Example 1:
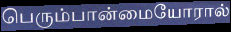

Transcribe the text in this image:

பெரும்பான்மையோரால்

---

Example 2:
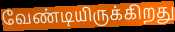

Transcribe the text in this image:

வேண்டியிருக்கிறது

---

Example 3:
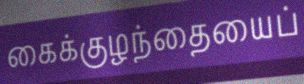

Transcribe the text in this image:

கைக்குழந்தையைப்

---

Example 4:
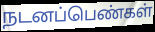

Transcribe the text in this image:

நடனப்பெண்கள்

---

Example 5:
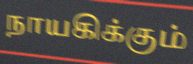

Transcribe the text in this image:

நாயகிக்கும்